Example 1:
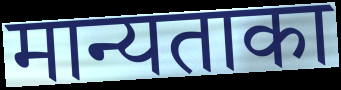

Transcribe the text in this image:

मान्यताका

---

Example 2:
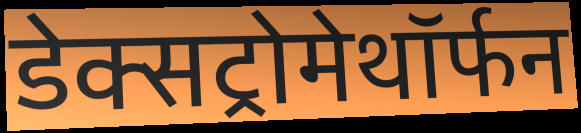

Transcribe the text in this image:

डेक्सट्रोमेथॉर्फन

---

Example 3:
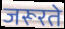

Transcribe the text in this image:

जरूरते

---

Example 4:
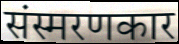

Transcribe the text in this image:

संस्मरणकार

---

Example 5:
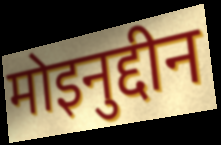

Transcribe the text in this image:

मोइनुद्दीन